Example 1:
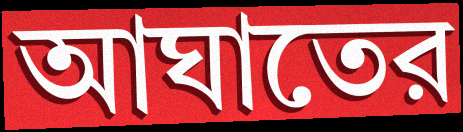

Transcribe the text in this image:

আঘাতের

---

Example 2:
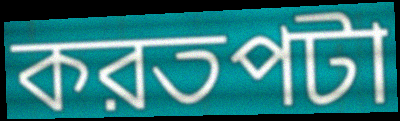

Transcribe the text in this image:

করতপটা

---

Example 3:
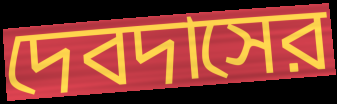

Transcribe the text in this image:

দেবদাসের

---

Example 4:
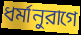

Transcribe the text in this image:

ধর্মানুরাগে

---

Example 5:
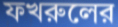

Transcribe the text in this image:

ফখরুলের